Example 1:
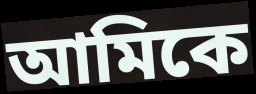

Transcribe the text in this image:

আমিকে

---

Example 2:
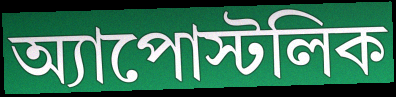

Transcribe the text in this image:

অ্যাপোস্টলিক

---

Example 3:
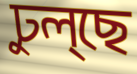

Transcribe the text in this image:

ঢুল্‌ছে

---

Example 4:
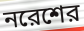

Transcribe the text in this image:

নরেশের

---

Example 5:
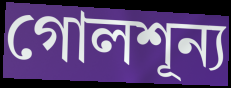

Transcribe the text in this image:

গোলশূন্য